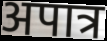
अपात्र